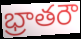
భ్రాతరౌ